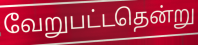
வேறுபட்டதென்று